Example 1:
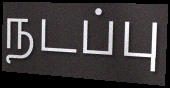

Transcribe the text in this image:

நடப்பு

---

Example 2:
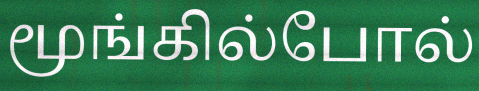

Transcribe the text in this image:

மூங்கில்போல்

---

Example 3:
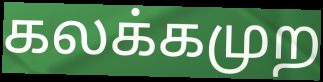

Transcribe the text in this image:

கலக்கமுற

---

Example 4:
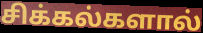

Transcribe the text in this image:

சிக்கல்களால்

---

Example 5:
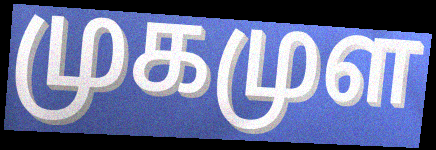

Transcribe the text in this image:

முகமுள